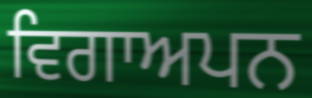
ਵਿਗਾਅਪਨ